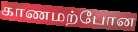
காணமற்போன